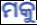
ମକୁ